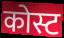
कोस्ट